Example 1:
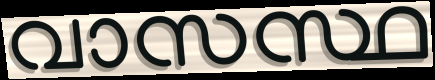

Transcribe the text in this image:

വാസസ്ഥ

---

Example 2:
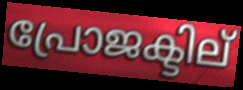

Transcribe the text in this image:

പ്രോജക്ടില്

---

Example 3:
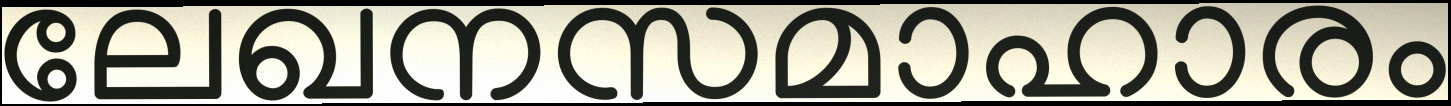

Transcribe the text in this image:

ലേഖനസമാഹാരം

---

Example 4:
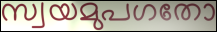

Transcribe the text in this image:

സ്വയമുപഗതോ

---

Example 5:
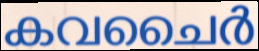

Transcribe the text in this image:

കവചൈർ